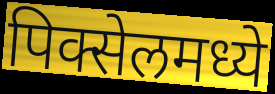
पिक्सेलमध्ये